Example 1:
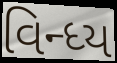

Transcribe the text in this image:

વિન્ધ્ય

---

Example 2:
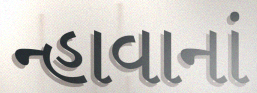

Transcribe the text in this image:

ન્હાવાનાં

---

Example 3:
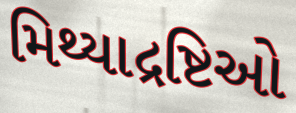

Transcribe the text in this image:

મિથ્યાદ્રષ્ટિઓ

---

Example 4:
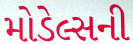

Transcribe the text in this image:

મોડેલ્સની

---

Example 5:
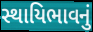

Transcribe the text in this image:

સ્થાયિભાવનું